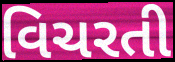
વિચરતી